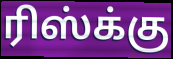
ரிஸ்க்கு